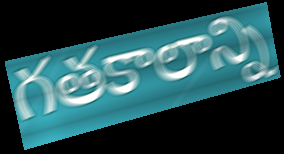
గతకాలాన్ని